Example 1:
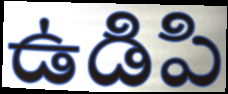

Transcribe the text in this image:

ఉడిపి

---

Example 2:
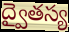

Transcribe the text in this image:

ద్వైతస్య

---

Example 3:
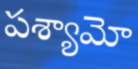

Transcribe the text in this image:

పశ్యామో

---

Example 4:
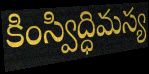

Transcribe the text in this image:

కింస్విద్ధిమస్య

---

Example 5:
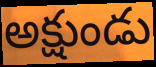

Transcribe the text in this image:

అక్షుండు